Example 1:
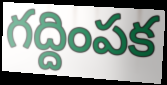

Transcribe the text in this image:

గద్దింపక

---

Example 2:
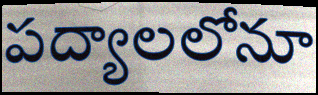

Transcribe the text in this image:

పద్యాలలోనూ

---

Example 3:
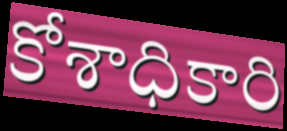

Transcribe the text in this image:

కోశాధికారి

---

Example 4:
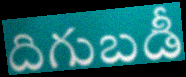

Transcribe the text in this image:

దిగుబడీ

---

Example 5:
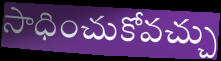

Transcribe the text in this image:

సాధించుకోవచ్చు